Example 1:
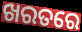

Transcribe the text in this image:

ଖରତରେ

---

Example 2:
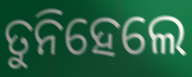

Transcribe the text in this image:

ତୁନିହେଲେ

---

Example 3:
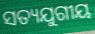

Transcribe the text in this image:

ସତ୍ୟଯୁଗୀୟ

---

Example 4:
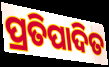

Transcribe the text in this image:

ପ୍ରତିପାଦିତ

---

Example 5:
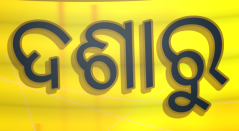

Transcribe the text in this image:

ଦଶାରୁ